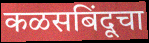
कळसबिंदूचा